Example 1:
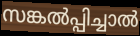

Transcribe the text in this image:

സങ്കൽപ്പിച്ചാൽ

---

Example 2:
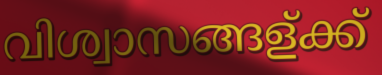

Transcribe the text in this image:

വിശ്വാസങ്ങള്ക്ക്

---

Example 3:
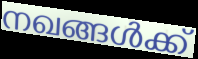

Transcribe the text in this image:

നഖങ്ങൾക്ക്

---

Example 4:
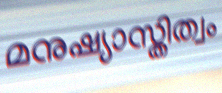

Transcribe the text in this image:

മനുഷ്യാസ്തിത്വം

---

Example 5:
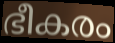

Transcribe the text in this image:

ഭീകരം